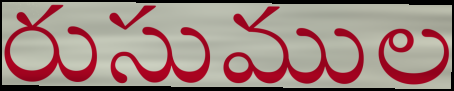
రుసుముల